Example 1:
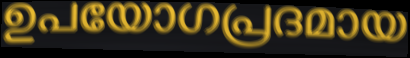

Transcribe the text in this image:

ഉപയോഗപ്രദമായ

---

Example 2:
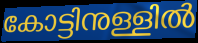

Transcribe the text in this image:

കോട്ടിനുള്ളിൽ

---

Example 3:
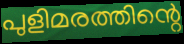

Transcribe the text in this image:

പുളിമരത്തിന്റെ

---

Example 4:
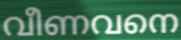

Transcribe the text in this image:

വീണവനെ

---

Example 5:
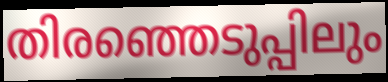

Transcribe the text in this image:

തിരഞ്ഞെടുപ്പിലും